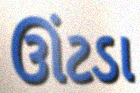
ઊંટડા